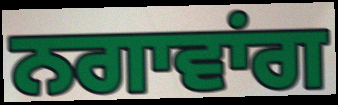
ਨਗਾਵਾਂਗ